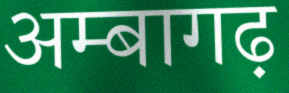
अम्बागढ़